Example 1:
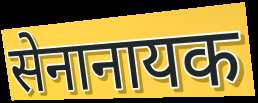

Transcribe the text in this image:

सेनानायक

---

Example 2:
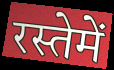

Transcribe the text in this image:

रस्तेमें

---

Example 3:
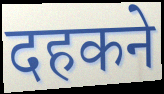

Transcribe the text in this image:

दहकने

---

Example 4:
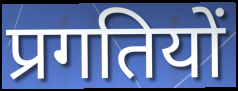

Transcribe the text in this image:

प्रगतियों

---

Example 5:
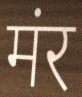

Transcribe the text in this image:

मंर